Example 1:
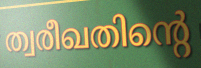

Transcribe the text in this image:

ത്വരീഖതിന്റെ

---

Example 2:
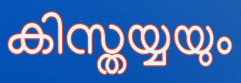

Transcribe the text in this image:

കിസ്തയ്യയും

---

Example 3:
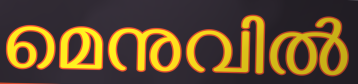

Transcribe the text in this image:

മെനുവിൽ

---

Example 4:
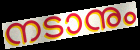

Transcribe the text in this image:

നടാനും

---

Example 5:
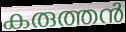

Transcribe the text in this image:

കരുത്തൻ